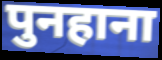
पुनहाना